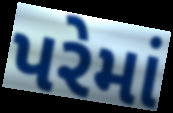
પરેમાં